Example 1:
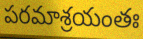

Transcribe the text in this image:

పరమాశ్రయంతః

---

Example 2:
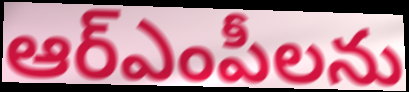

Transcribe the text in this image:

ఆర్ఎంపీలను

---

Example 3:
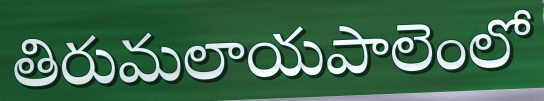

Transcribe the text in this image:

తిరుమలాయపాలెంలో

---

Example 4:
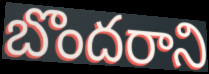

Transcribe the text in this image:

బొందరాని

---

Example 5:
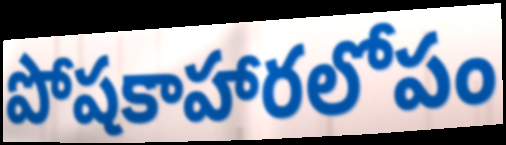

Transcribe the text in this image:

పోషకాహారలోపం